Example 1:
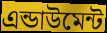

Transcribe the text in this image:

এন্ডাউমেন্ট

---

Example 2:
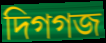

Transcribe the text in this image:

দিগগজ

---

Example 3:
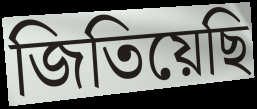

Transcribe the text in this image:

জিতিয়েছি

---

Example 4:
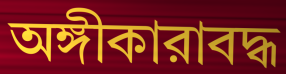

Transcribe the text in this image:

অঙ্গীকারাবদ্ধ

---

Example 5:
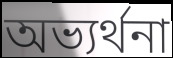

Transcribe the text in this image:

অভ্যর্থনা